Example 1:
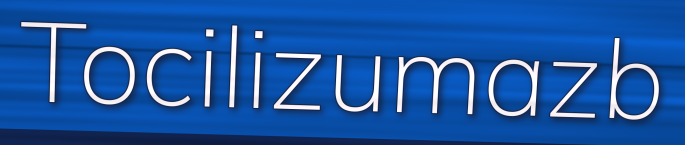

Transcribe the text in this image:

Tocilizumazb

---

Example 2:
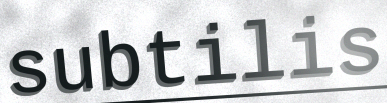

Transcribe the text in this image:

subtilis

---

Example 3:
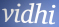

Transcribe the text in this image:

vidhi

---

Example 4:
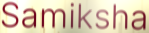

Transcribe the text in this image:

Samiksha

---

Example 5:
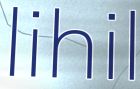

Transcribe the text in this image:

lihil